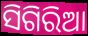
ସିଗିରିଆ